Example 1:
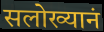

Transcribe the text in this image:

सलोख्यानं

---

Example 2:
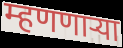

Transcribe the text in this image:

म्हणणार्‍या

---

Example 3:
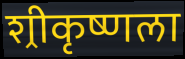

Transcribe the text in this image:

श्रीकृष्णला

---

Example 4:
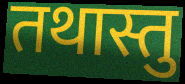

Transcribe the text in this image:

तथास्तु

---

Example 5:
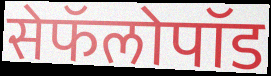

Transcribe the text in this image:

सेफॅलोपॉड